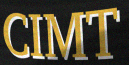
CIMT